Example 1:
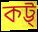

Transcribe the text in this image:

কট্ট্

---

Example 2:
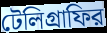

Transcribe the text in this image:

টেলিগ্রাফির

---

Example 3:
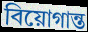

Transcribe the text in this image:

বিয়োগান্ত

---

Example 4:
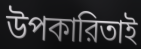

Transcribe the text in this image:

উপকারিতাই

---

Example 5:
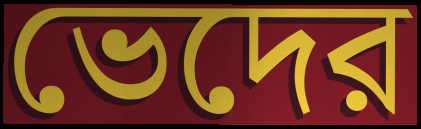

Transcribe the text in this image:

ভেদের